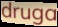
druga